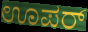
ಊಪರ್